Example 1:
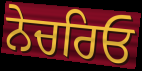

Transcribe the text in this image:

ਨੇਚਰਿਓ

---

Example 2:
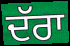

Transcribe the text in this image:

ਦੱਰਾ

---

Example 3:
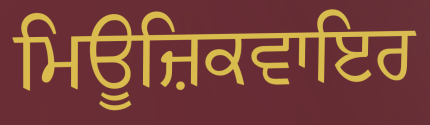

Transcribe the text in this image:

ਮਿਊਜ਼ਿਕਵਾਇਰ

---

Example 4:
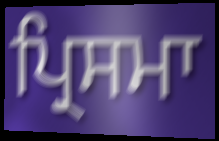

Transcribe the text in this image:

ਪ੍ਰਿਸਮਾ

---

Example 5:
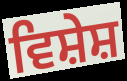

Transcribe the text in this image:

ਵਿਸ਼ੇਸ਼